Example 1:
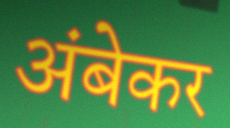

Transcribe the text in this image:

अंबेकर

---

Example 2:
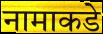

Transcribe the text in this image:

नामाकडे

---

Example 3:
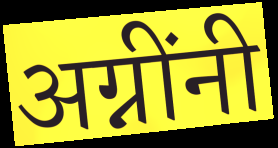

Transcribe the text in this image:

अग्नींनी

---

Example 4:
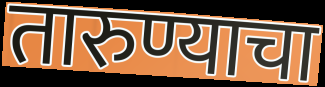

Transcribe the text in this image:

तारुण्याचा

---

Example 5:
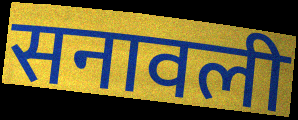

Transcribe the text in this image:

सनावली